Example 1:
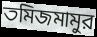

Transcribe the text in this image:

তমিজমামুর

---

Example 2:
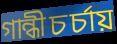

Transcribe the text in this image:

গান্ধীচর্চায়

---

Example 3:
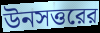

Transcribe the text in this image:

উনসত্তরের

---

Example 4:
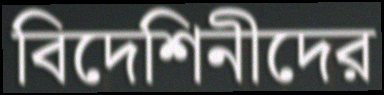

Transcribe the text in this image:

বিদেশিনীদের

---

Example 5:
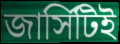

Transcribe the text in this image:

জার্সিটিই